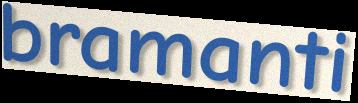
bramanti